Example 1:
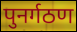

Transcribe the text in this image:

पुनर्गठण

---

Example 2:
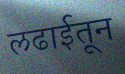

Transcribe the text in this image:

लढाईतून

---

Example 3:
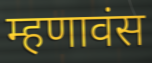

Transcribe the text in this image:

म्हणावंस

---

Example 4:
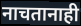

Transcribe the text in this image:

नाचतानाही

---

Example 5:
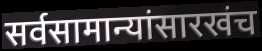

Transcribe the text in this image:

सर्वसामान्यांसारखंच